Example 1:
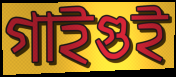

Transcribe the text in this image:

গাইগুই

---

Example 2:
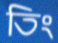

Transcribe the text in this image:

তিং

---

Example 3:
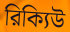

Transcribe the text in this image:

রিক্যিউ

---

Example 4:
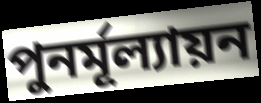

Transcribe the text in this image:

পুনর্মূল্যায়ন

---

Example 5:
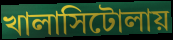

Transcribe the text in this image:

খালাসিটোলায়